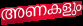
അണകളും